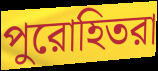
পুরোহিতরা